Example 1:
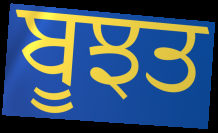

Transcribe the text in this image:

ਬੂਝਤ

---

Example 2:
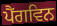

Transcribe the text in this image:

ਪੈਂਗਵਿਨ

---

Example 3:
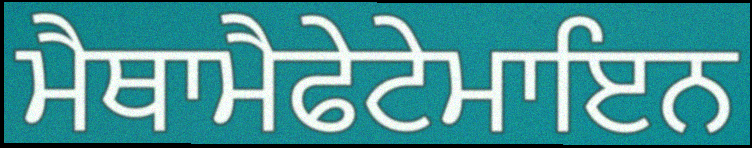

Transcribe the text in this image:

ਮੈਥਾਮੈਫੇਟੇਮਾਇਨ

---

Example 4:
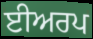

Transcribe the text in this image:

ਈਅਰਪ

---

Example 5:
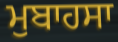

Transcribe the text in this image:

ਮੁਬਾਹਸਾ